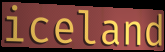
iceland